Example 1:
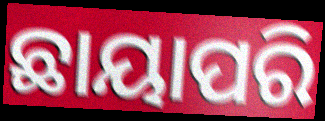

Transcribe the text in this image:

ଛାୟାପରି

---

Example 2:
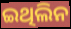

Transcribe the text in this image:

ଇଥିଲିନ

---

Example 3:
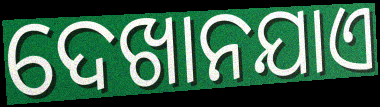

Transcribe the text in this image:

ଦେଖାନଯାଏ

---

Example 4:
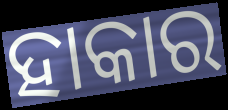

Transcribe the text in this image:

ହାକାର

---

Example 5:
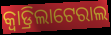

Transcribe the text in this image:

କ୍ୱାଡ୍ରିଲାଟେରାଲ